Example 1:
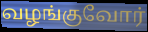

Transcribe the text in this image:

வழங்குவோர்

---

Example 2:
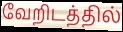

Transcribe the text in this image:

வேறிடத்தில்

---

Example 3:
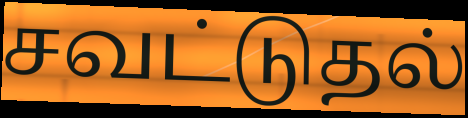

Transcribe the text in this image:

சவட்டுதல்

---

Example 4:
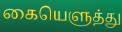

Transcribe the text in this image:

கையெளுத்து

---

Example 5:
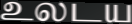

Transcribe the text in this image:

உலடய